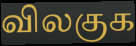
விலகுக